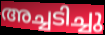
അച്ചടിച്ചു